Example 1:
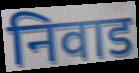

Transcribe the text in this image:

निवाड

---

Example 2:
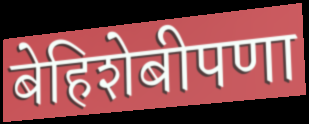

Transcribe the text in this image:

बेहिशेबीपणा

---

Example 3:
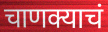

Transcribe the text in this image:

चाणक्याचं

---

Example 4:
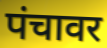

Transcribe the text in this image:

पंचावर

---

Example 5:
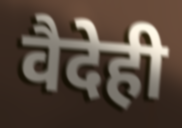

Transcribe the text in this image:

वैदेही